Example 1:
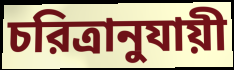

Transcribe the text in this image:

চরিত্রানুযায়ী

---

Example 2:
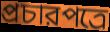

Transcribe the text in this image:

প্রচারপত্রে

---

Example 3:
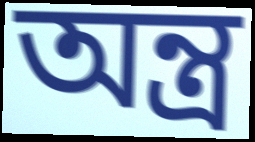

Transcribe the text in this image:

অন্ত্র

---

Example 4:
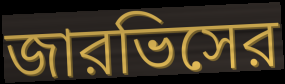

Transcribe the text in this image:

জারভিসের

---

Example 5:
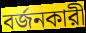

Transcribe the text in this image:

বর্জনকারী